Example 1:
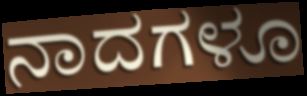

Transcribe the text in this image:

ನಾದಗಳೂ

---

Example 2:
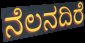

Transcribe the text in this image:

ನೆಲನದಿರೆ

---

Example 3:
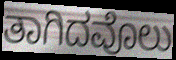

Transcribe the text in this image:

ತಾಗಿದವೊಲು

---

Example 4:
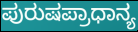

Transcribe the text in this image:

ಪುರುಷಪ್ರಾಧಾನ್ಯ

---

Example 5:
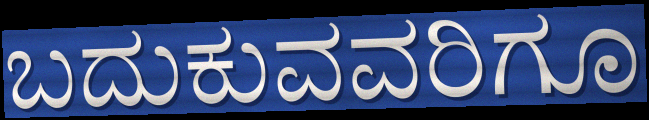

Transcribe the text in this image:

ಬದುಕುವವರಿಗೂ